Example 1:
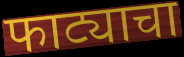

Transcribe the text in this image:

फाट्याचा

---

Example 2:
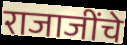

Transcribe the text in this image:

राजाजींचे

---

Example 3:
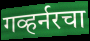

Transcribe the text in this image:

गव्हर्नरचा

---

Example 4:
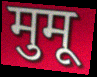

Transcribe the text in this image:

मुमू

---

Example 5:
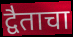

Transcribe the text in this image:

द्वैताचा